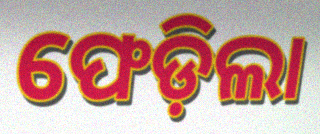
ଫେଡ଼ିଲା